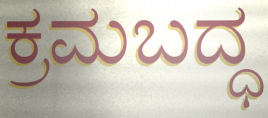
ಕ್ರಮಬದ್ಧ